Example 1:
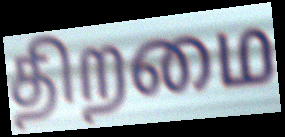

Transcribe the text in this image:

திறமை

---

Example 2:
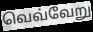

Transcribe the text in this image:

வெவ்வேறு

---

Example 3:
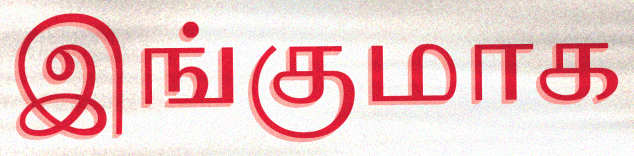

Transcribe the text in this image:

இங்குமாக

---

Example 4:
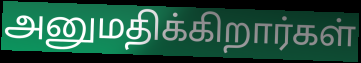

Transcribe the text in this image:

அனுமதிக்கிறார்கள்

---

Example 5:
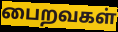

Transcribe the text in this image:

பைறவகள்